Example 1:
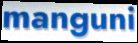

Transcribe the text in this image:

manguni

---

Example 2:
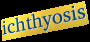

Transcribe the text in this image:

ichthyosis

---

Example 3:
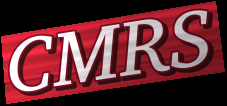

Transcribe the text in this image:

CMRS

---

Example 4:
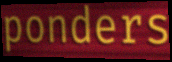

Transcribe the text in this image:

ponders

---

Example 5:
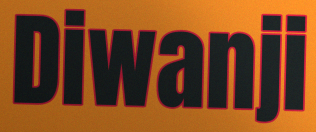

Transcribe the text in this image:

Diwanji